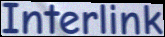
Interlink